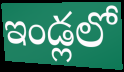
ఇండ్లలో